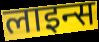
लाइन्स